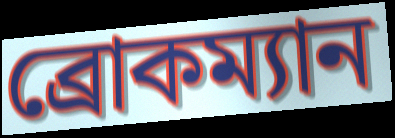
ব্রোকম্যান